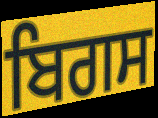
ਬਿਗਸ